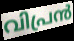
വിപ്രൻ